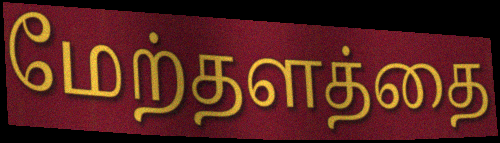
மேற்தளத்தை